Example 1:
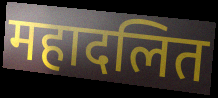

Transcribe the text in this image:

महादलित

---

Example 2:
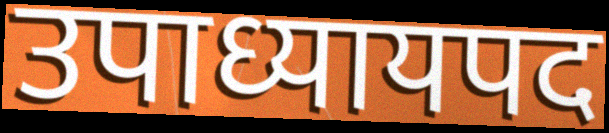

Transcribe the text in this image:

उपाध्यायपद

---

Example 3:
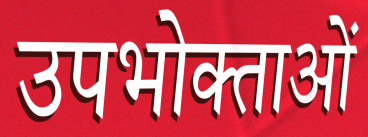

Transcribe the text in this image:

उपभोक्ताओं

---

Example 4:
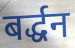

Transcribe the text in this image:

बर्द्धन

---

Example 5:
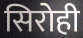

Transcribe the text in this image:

सिरोही